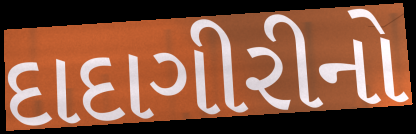
દાદાગીરીનો